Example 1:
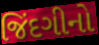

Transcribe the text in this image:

જિંદગીનો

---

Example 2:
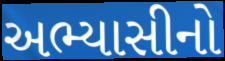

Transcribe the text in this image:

અભ્યાસીનો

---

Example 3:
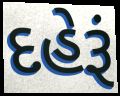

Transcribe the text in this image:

દહેરૂં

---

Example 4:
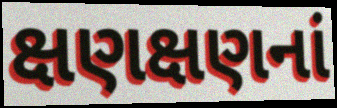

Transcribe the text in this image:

ક્ષણક્ષણનાં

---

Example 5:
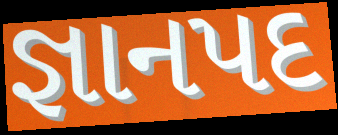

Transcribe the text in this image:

જ્ઞાનપદ